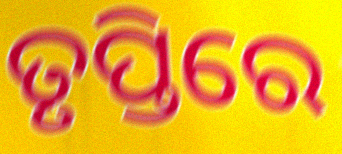
ତୃପ୍ତିରେ